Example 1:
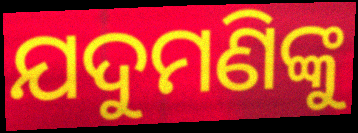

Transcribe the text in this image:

ଯଦୁମଣିଙ୍କୁ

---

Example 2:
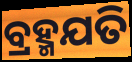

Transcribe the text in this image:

ବ୍ରହ୍ମଯତି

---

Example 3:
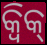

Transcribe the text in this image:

କ୍ୱିକ୍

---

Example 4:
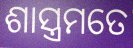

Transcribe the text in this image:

ଶାସ୍ତ୍ରମତେ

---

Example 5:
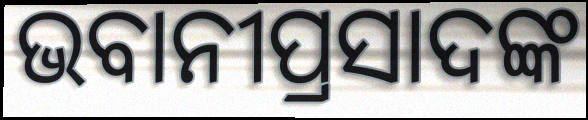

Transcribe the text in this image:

ଭବାନୀପ୍ରସାଦଙ୍କ